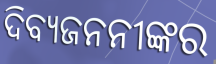
ଦିବ୍ୟଜନନୀଙ୍କର